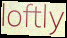
loftly